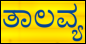
ತಾಲವ್ಯ